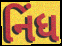
નિંધ